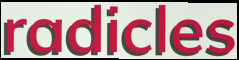
radicles